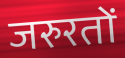
जरुरतों